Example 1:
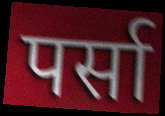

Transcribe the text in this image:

पर्सा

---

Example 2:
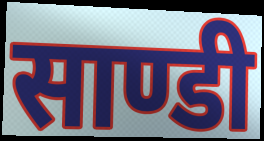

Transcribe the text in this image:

साण्डी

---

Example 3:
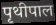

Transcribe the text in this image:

पृथीपाल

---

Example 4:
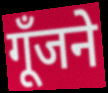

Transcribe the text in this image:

गूँजने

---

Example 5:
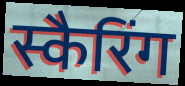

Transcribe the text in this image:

स्कैरिंग